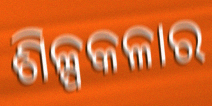
ଶିଳ୍ପକଳାର